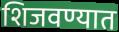
शिजवण्यात